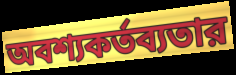
অবশ্যকর্তব্যতার